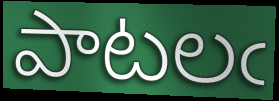
పాటలఁ